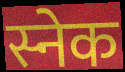
स्‍नेक